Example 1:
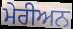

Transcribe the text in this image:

ਮੇਰੀਅਨ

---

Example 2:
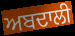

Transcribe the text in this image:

ਅਬਦਾਲੀ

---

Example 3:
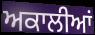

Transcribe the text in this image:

ਅਕਾਲੀਆਂ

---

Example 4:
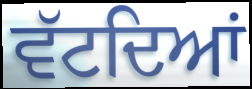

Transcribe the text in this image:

ਵੱਟਦਿਆਂ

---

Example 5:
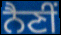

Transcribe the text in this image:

ਨੈਣੀਂ